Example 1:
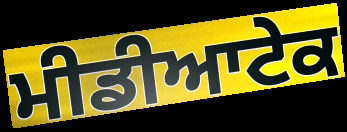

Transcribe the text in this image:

ਮੀਡੀਆਟੇਕ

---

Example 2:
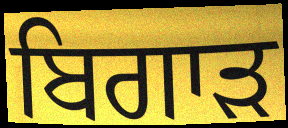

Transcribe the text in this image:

ਬਿਗਾੜ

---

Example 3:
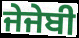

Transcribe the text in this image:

ਜੇਜੇਬੀ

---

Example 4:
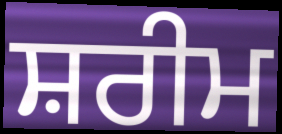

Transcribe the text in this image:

ਸ਼ਰੀਮ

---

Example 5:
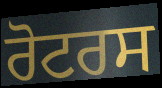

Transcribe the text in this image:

ਰੋਟਰਸ